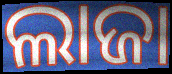
ଲାଜା